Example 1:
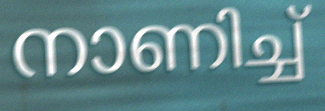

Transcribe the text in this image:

നാണിച്ച്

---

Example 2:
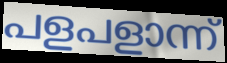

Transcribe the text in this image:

പളപളാന്ന്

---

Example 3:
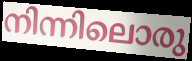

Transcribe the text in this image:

നിന്നിലൊരു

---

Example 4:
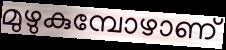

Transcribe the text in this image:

മുഴുകുമ്പോഴാണ്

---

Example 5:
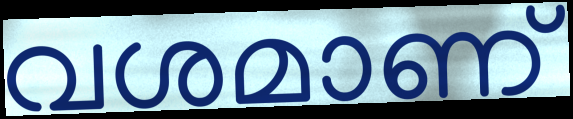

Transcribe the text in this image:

വശമാണ്